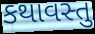
કથાવસ્તુ